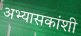
अभ्यासकांशी